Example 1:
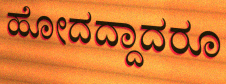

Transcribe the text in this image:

ಹೋದದ್ದಾದರೂ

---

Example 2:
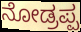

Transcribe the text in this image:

ನೋಡ್ರಪ್ಪ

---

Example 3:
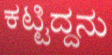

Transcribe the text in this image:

ಕಟ್ಟಿದ್ದನು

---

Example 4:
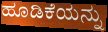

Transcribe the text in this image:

ಹೂಡಿಕೆಯನ್ನು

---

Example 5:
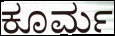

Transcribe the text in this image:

ಕೂರ್ಮ